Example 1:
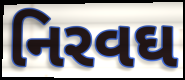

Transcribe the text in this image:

નિરવઘ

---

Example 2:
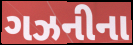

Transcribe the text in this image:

ગઝનીના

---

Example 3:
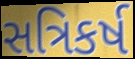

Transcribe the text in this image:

સત્રિકર્ષ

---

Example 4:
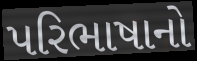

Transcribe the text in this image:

પરિભાષાનો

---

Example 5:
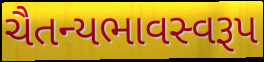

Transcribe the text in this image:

ચૈતન્યભાવસ્વરૂપ